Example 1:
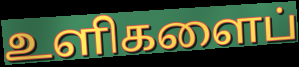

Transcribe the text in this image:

உளிகளைப்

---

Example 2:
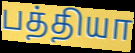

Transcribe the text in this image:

பத்தியா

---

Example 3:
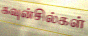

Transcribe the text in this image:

கவுன்சில்கள்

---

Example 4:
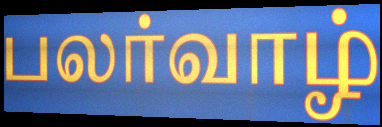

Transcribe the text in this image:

பலர்வாழ்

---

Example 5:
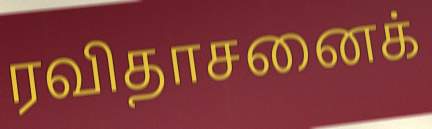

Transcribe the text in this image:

ரவிதாசனைக்